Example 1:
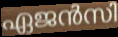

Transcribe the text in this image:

ഏജൻസി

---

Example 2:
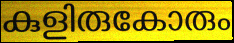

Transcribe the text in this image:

കുളിരുകോരും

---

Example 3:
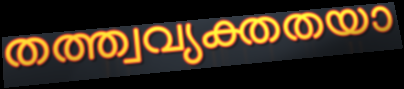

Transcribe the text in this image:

തത്ത്വവ്യക്തതയാ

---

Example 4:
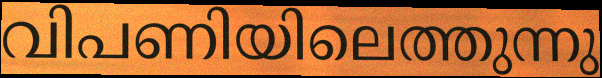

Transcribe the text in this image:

വിപണിയിലെത്തുന്നു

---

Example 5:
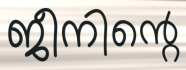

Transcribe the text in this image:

ജീനിന്റെ